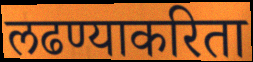
लढण्याकरिता